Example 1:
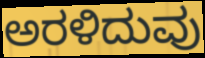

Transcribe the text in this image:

ಅರಳಿದುವು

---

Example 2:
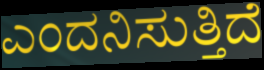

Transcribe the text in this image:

ಎಂದನಿಸುತ್ತಿದೆ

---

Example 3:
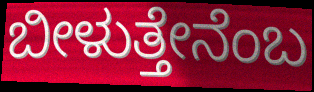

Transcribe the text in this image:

ಬೀಳುತ್ತೇನೆಂಬ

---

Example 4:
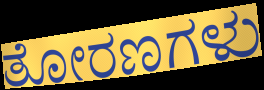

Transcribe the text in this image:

ತೋರಣಗಳು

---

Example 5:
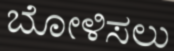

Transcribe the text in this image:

ಬೋಳಿಸಲು